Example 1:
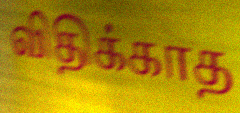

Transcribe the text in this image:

விதிக்காத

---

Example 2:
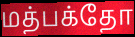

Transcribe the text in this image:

மத்பக்தோ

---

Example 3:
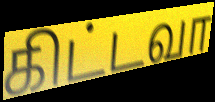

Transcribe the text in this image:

கிட்டவா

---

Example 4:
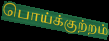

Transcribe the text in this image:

பொய்க்குற்றம்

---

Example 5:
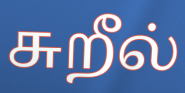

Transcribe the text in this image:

சுறீல்